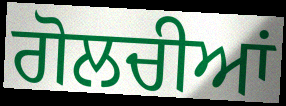
ਗੋਲਚੀਆਂ